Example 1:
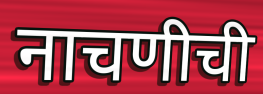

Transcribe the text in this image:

नाचणीची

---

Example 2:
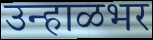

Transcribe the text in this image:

उन्हाळभर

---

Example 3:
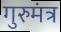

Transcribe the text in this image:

गुरुमंत्र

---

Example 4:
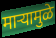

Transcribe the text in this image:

माऱ्यामुळे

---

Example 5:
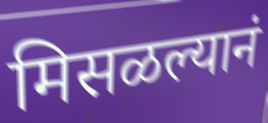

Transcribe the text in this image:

मिसळल्यानं